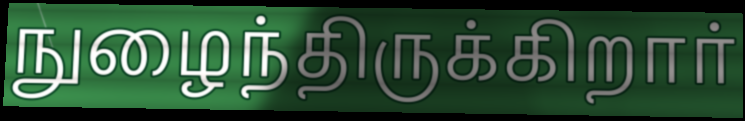
நுழைந்திருக்கிறார்